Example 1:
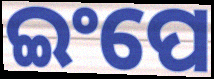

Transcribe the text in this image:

ଇଂପେ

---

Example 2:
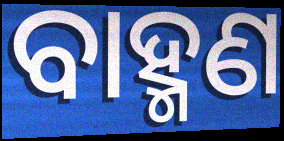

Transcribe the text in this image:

ବାହ୍ମଣ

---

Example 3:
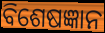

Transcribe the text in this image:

ବିଶେଷଜ୍ଞାନ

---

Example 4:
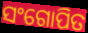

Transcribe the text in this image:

ସଂଗୋପିତ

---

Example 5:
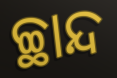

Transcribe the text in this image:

ଚ୍ଛାନ୍ଦ